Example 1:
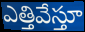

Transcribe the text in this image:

ఎత్తివేస్తూ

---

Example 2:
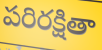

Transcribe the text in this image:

పరిరక్షితా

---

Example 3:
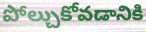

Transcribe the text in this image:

పోల్చుకోవడానికి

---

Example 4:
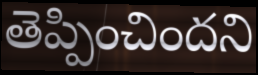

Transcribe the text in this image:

తెప్పించిందని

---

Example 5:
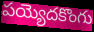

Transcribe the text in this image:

పయ్యెదకొంగు